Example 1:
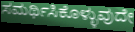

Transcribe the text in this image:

ಸಮರ್ಥಿಸಿಕೊಳ್ಳುವುದೇ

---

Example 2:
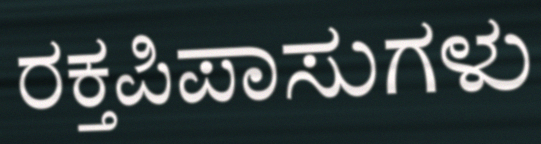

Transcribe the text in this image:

ರಕ್ತಪಿಪಾಸುಗಳು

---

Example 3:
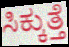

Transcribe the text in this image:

ಸಿಕ್ಕುತ್ತೆ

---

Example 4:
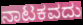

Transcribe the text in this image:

ನಾಟಕವದು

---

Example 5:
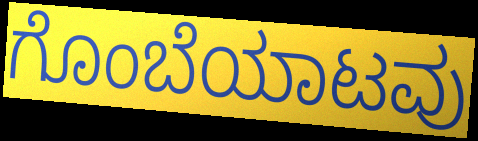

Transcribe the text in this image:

ಗೊಂಬೆಯಾಟವು